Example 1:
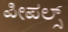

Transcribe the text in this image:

ಪೀಪಲ್ಸ್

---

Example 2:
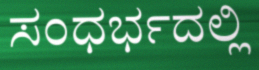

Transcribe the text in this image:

ಸಂಧರ್ಭದಲ್ಲಿ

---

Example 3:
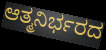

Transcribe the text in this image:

ಆತ್ಮನಿರ್ಭರದ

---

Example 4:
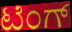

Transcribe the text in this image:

ಟೆಂಗ್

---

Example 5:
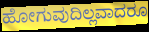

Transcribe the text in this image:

ಹೋಗುವುದಿಲ್ಲವಾದರೂ